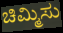
ಚಿಮ್ಮಿಸು